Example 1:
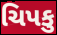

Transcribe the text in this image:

ચિપકુ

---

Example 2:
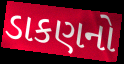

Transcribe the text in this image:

ડાકણનો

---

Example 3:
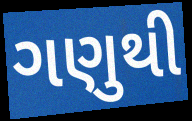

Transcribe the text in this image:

ગણુથી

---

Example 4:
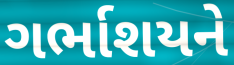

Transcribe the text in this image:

ગર્ભાશયને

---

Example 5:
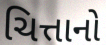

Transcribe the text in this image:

ચિત્તાનો